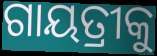
ଗାୟତ୍ରୀକୁ